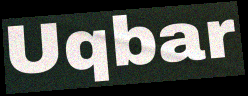
Uqbar